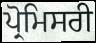
ਪ੍ਰੋਮਿਸਰੀ